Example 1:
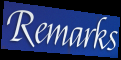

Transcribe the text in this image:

Remarks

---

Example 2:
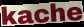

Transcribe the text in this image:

kache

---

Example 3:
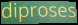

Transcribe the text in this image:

diproses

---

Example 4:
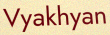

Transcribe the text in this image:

Vyakhyan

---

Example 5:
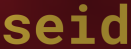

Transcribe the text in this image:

seid